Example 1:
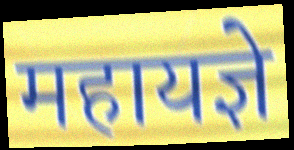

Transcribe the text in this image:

महायज्ञे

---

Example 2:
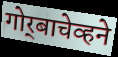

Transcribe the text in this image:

गोर्बाचेव्हने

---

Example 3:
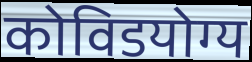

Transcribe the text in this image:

कोविडयोग्य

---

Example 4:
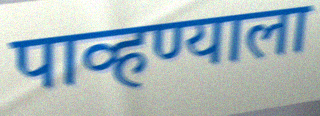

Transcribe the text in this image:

पाव्हण्याला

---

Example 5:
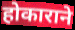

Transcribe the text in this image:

होकाराने